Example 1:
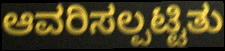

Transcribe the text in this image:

ಆವರಿಸಲ್ಪಟ್ಟಿತು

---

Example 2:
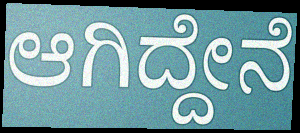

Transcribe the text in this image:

ಆಗಿದ್ದೇನೆ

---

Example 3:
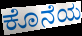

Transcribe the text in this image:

ಕೊನೆಯ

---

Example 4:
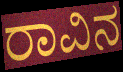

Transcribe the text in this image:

ರಾವಿನ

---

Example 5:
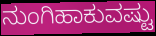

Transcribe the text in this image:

ನುಂಗಿಹಾಕುವಷ್ಟು